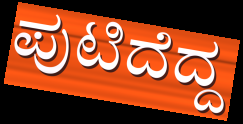
ಪುಟಿದೆದ್ದ